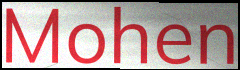
Mohen